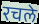
रचले